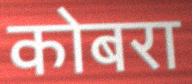
कोबरा